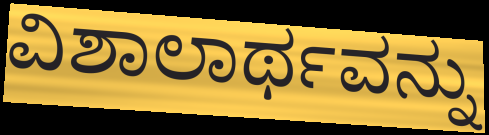
ವಿಶಾಲಾರ್ಥವನ್ನು